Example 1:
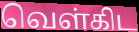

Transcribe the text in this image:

வெள்கிட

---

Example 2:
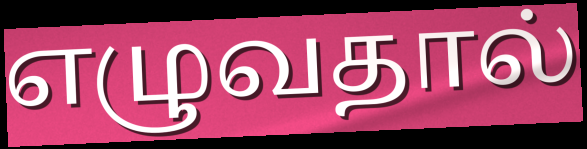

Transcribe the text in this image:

எழுவதால்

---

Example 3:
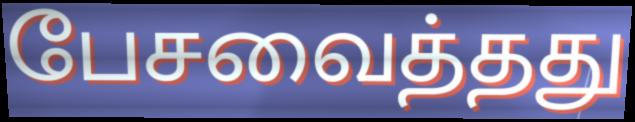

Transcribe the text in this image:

பேசவைத்தது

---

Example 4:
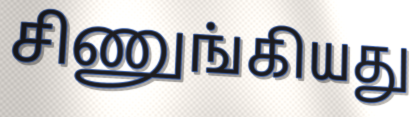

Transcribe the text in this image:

சிணுங்கியது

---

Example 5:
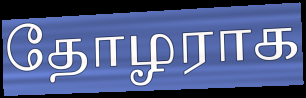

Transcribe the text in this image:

தோழராக